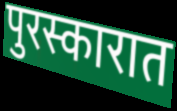
पुरस्कारात